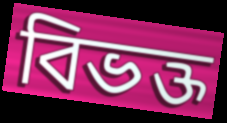
বিভক্ত